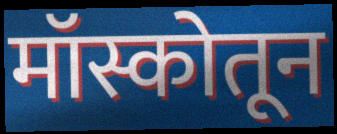
मॉस्कोतून